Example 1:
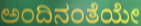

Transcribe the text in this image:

ಅಂದಿನಂತೆಯೇ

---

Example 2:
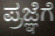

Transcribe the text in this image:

ಪ್ರಜ್ಞೆಗೆ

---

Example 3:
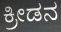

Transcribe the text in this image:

ಕ್ರೀಡನ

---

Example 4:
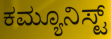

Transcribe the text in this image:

ಕಮ್ಯೂನಿಸ್ಟ್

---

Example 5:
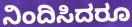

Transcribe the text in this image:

ನಿಂದಿಸಿದರೂ